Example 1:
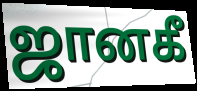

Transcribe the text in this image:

ஜானகீ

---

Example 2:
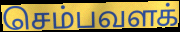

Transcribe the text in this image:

செம்பவளக்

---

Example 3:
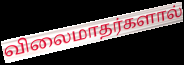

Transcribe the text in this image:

விலைமாதர்களால்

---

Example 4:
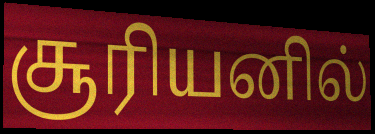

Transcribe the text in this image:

சூரியனில்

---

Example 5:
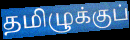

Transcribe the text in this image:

தமிழுக்குப்